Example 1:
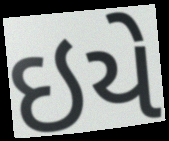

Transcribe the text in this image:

ઇયે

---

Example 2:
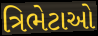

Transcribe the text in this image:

ત્રિભેટાઓ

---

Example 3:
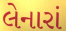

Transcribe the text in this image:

લેનારાં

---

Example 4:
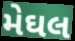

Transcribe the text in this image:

મેઘલ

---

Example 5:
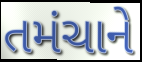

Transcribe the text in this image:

તમંચાને